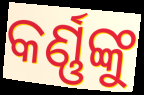
କର୍ଣ୍ଣଙ୍କୁ